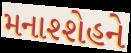
મનાશ્શેહને